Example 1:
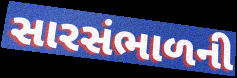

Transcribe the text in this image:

સારસંભાળની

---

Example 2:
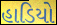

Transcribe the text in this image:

હાડિયો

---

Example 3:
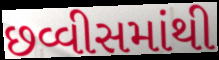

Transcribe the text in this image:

છવ્વીસમાંથી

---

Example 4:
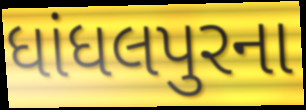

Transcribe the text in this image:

ધાંધલપુરના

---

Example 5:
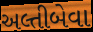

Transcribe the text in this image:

અલ્તીબેવા